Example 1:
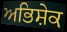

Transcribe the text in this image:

ਅਭਿਸ਼ੇਕ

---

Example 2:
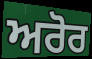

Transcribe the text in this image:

ਅਰੋਰ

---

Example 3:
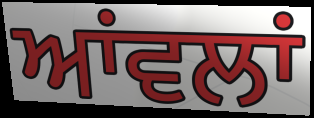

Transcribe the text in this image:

ਆਂਵਲਾਂ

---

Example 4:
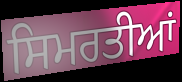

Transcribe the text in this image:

ਸਿਮਰਤੀਆਂ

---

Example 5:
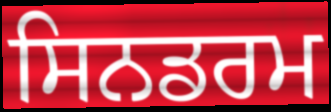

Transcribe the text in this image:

ਸਿਨਡਰਮ